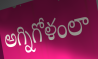
అగ్నిగోళంలా